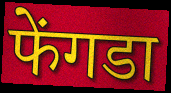
फेंगडा